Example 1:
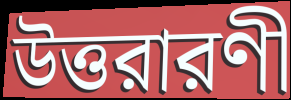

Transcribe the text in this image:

উত্তরারণী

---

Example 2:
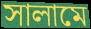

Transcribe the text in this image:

সালামে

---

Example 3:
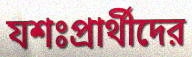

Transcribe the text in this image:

যশঃপ্রার্থীদের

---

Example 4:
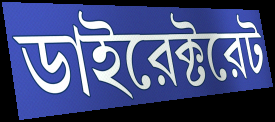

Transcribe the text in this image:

ডাইরেক্টরেট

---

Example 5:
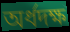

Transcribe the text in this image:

অর্ধদক্ষ